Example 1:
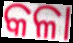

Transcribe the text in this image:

କଳା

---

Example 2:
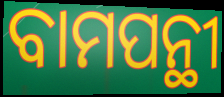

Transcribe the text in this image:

ବାମପନ୍ଥୀ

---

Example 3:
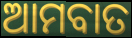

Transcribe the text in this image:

ଆମବାତ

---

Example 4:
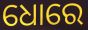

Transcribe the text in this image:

ଧୋରେ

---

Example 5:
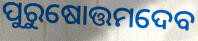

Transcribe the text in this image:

ପୁରୁଷୋତ୍ତମଦେବ